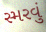
સ્મરવું